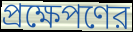
প্রক্ষেপণের